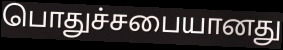
பொதுச்சபையானது